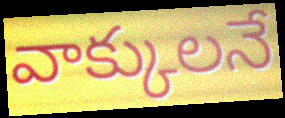
వాక్కులనే